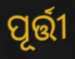
ପୂର୍ତ୍ତୀ